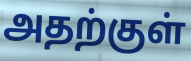
அதற்குள்